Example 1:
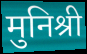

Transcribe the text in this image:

मुनिश्री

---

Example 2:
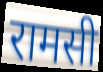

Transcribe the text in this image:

रामसी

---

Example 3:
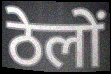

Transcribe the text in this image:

ठेलों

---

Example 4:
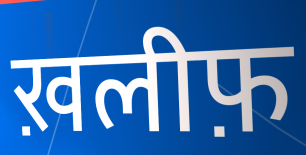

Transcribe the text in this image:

ख़लीफ़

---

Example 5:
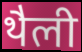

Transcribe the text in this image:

थैली